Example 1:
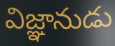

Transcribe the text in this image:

విజ్ఞానుడు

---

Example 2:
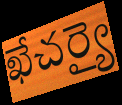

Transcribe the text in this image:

ఖేచర్యై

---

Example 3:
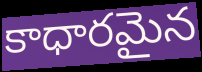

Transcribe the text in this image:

కాధారమైన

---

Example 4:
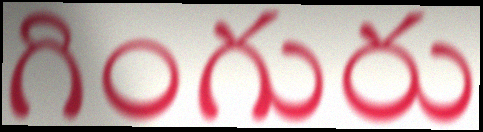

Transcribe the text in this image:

గింగురు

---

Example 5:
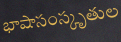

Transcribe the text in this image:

భాషాసంస్కృతుల